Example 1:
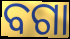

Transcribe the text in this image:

ବଗା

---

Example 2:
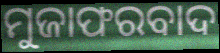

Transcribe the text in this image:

ମୁଜାଫରବାଦ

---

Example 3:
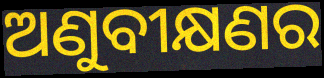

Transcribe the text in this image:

ଅଣୁବୀକ୍ଷଣର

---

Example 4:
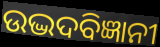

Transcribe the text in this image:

ଉଦ୍ଭଦବିଜ୍ଞାନୀ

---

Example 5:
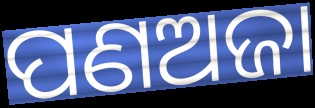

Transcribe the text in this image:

ପଣଅଜା